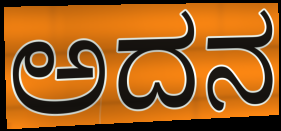
ಅದನ